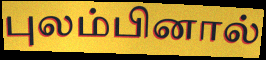
புலம்பினால்